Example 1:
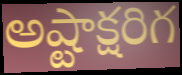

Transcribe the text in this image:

అష్టాక్షరిగ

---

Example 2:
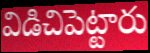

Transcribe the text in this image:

విడిచిపెట్టారు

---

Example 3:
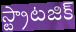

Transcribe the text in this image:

స్ట్రాటజిక్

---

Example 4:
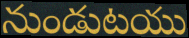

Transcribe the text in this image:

నుండుటయు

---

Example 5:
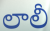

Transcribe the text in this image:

లాలీ